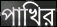
পাখির